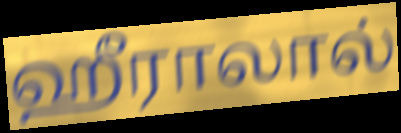
ஹீராலால்